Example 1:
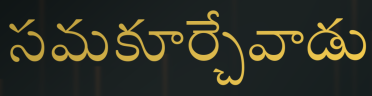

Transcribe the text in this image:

సమకూర్చేవాడు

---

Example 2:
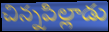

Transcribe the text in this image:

చిన్నపిల్లాడు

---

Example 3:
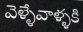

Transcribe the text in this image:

వెళ్ళేవాళ్ళకి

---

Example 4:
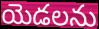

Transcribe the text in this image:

యెడలను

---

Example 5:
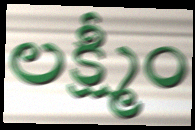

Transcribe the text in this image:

లక్ష్మీం